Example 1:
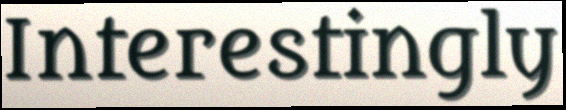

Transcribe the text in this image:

Interestingly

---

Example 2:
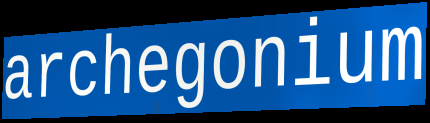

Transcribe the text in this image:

archegonium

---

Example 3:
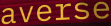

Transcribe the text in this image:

averse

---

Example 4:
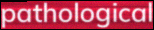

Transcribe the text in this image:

pathological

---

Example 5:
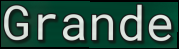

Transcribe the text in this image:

Grande